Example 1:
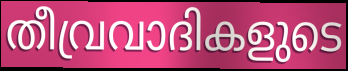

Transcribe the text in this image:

തീവ്രവാദികളുടെ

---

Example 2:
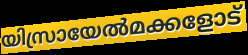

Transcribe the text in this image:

യിസ്രായേൽമക്കളോട്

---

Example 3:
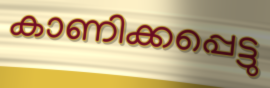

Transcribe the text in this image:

കാണിക്കപ്പെട്ടു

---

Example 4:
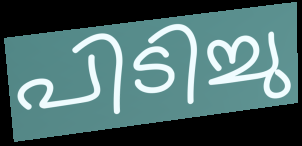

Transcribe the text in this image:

പിടിച്ചു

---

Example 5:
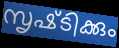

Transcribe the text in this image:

സൃഷ്‌ടിക്കും